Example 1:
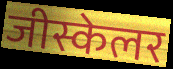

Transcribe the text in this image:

जीस्केलर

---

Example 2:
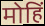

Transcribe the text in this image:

मोहिं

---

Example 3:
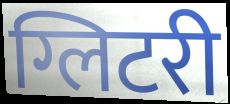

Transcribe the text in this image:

ग्लिटरी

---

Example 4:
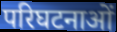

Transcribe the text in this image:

परिघटनाओं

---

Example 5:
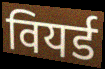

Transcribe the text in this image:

वियर्ड